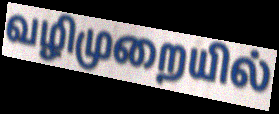
வழிமுறையில்